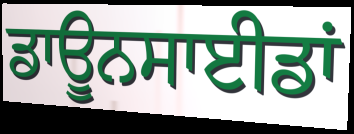
ਡਾਊਨਸਾਈਡਾਂ